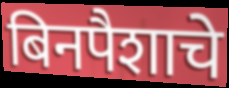
बिनपैशाचे